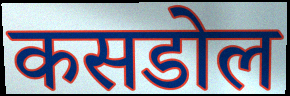
कसडोल